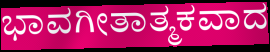
ಭಾವಗೀತಾತ್ಮಕವಾದ